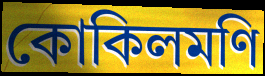
কোকিলমণি